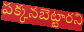
పక్కనబెట్టారని